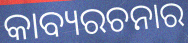
କାବ୍ୟରଚନାର